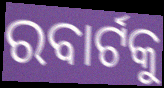
ରବାର୍ଟକୁ